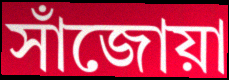
সাঁজোয়া